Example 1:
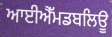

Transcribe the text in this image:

ਆਈਐੱਮਡਬਲਿਊ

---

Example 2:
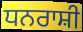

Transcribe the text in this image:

ਧਨਰਾਸ਼ੀ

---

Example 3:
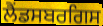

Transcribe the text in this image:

ਲੈਂਡਸਬਰਗਿਸ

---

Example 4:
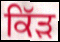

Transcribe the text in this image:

ਕਿੱੜ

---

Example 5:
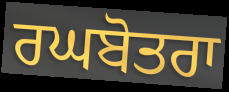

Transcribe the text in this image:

ਰਘਬੋਤਰਾ